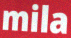
mila